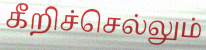
கீறிச்செல்லும்